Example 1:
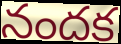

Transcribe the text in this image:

నందక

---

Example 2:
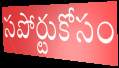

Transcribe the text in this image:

సపోర్టుకోసం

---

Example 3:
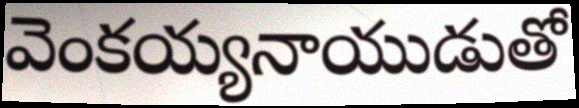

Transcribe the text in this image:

వెంకయ్యనాయుడుతో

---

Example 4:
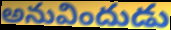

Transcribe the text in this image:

అనువిందుడు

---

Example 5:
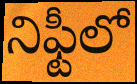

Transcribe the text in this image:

నిఫ్టీలో